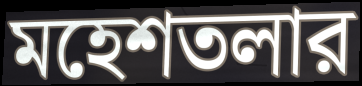
মহেশতলার